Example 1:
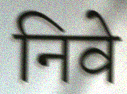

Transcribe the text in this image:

निवे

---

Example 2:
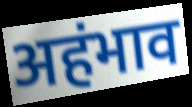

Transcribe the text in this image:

अहंभाव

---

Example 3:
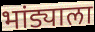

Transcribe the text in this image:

भांड्याला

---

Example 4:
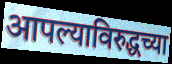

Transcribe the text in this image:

आपल्याविरुद्धच्या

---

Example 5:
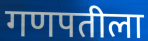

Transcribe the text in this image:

गणपतीला